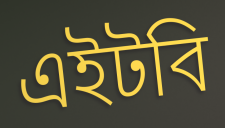
এইটবি